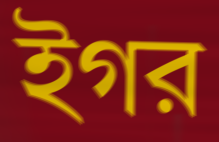
ইগর